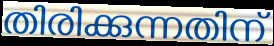
തിരിക്കുന്നതിന്